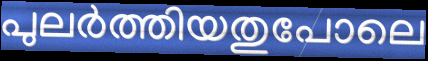
പുലർത്തിയതുപോലെ